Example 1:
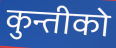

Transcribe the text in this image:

कुन्तीको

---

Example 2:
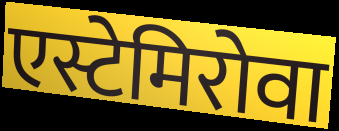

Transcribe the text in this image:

एस्टेमिरोवा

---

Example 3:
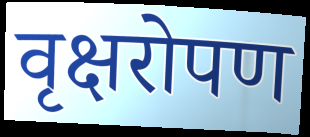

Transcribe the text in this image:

वृक्षरोपण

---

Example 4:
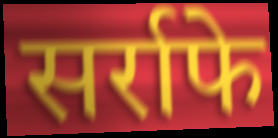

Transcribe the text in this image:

सर्राफे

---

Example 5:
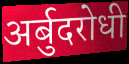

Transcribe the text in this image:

अर्बुदरोधी